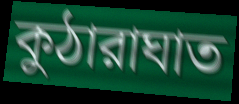
কুঠারাঘাত